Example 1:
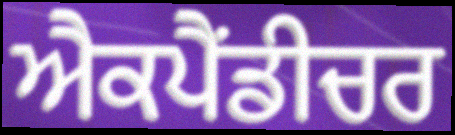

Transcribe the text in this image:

ਐਕਪੈਂਡੀਚਰ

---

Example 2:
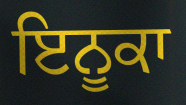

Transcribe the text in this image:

ਇਨੂਕਾ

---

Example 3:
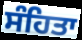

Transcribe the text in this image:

ਸੰਹਿਤਾ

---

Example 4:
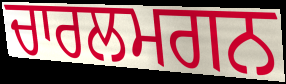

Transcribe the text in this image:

ਚਾਰਲਮਗਨ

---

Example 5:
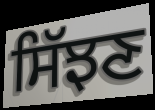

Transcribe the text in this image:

ਸਿੱਝਣ